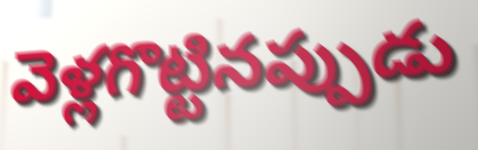
వెళ్లగొట్టినప్పుడు